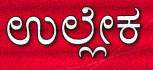
ಉಲ್ಲೇಕ